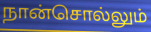
நான்சொல்லும்